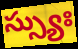
స్స్యుః